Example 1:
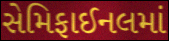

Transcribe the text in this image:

સેમિફાઈનલમાં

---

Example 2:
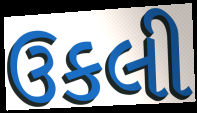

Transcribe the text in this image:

ઉકલી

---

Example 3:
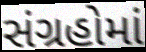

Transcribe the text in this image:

સંગ્રહોમાં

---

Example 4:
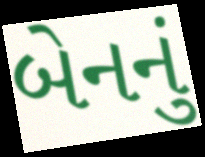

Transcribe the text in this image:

બેનનું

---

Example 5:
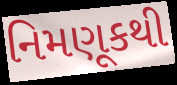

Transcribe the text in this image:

નિમણૂકથી